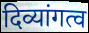
दिव्यांगत्व